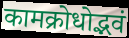
कामक्रोधोद्भवं